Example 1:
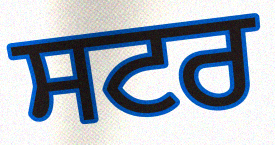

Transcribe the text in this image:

ਸਟਰ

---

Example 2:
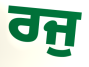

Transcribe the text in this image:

ਰਜੁ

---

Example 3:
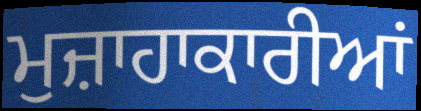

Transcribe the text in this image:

ਮੁਜ਼ਾਹਾਕਾਰੀਆਂ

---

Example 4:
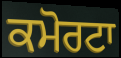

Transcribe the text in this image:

ਕਮੋਰਟਾ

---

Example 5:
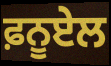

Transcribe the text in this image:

ਫ਼ਨੂਏਲ